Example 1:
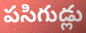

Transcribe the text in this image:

పసిగుడ్లు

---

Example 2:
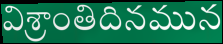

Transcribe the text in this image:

విశ్రాంతిదినమున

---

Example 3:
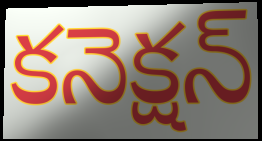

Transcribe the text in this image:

కనెక్షన్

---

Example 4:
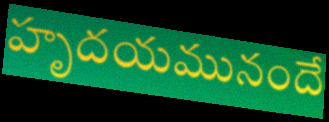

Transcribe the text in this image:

హృదయమునందే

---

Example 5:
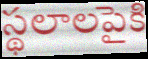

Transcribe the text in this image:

స్థలాలపైకి